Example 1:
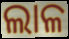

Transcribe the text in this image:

ଲାଳ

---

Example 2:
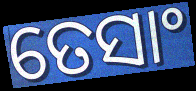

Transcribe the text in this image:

ତେସାଂ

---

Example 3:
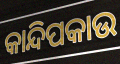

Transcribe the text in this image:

କାନ୍ଦିପକାଉ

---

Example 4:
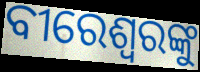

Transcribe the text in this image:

ବୀରେଶ୍ୱରଙ୍କୁ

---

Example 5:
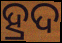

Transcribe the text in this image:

ହ୍ରଦ